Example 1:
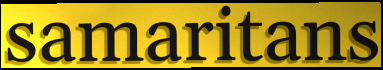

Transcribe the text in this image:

samaritans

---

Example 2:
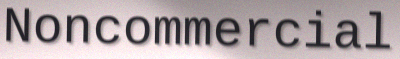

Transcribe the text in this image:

Noncommercial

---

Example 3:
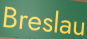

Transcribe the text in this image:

Breslau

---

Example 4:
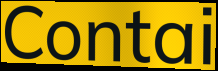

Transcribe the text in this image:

Contai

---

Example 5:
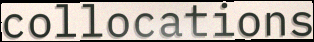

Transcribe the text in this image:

collocations